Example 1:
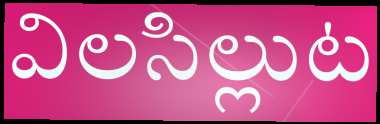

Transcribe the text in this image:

విలసిల్లుట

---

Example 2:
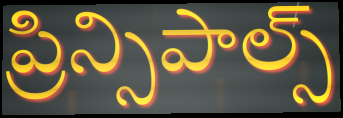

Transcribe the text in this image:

ప్రిన్సిపాల్స్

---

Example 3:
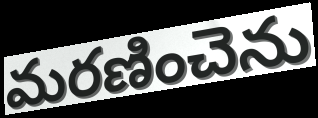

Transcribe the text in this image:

మరణించెను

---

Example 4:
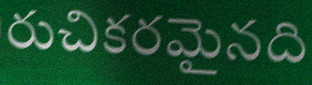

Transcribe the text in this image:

రుచికరమైనది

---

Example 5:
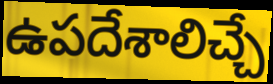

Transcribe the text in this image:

ఉపదేశాలిచ్చే